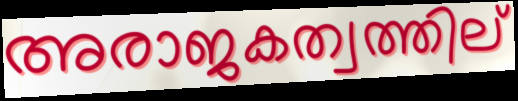
അരാജകത്വത്തില്